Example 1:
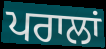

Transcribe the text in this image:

ਪਰਾਲਾਂ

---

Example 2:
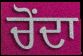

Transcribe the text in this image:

ਚੋਂਦਾ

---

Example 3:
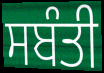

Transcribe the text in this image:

ਸਬੰਤੀ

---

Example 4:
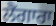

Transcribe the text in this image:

ਲੈਂਗਾਰਾ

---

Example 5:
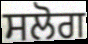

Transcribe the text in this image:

ਸਲੋਗ